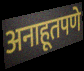
अनाहूतपणे